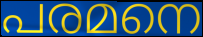
പരമനെ